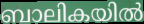
ബാലികയിൽ